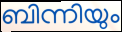
ബിന്നിയും